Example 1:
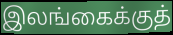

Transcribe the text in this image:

இலங்கைக்குத்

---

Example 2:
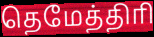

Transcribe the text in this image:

தெமேத்திரி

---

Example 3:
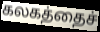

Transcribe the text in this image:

கலகத்தைச்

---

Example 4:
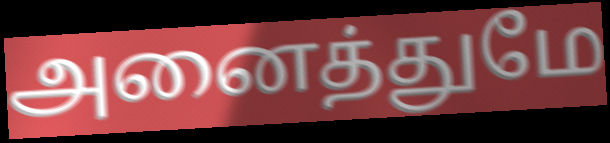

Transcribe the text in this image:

அனைத்துமே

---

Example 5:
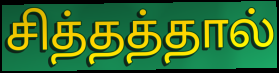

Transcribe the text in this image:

சித்தத்தால்